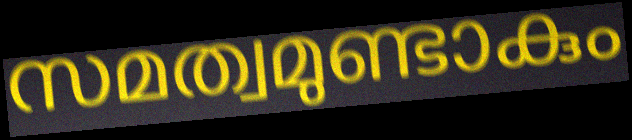
സമത്വമുണ്ടാകും